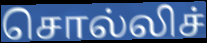
சொல்லிச்